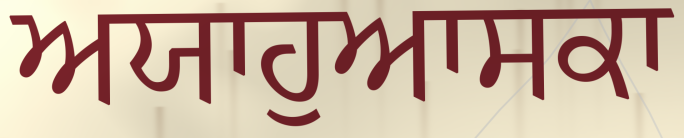
ਅਯਾਹੁਆਸਕਾ